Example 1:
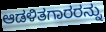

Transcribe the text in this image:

ಆಡಳಿತಗಾರರನ್ನು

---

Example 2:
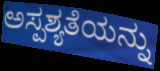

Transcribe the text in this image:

ಅಸ್ಪಶ್ಯತೆಯನ್ನು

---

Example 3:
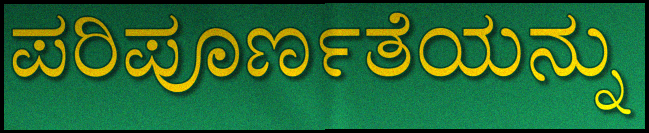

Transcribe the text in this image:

ಪರಿಪೂರ್ಣತೆಯನ್ನು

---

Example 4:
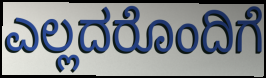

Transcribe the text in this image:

ಎಲ್ಲದರೊಂದಿಗೆ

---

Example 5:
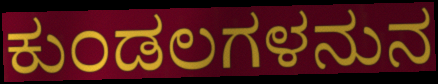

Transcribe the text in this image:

ಕುಂಡಲಗಳನುನ